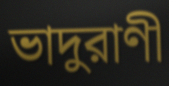
ভাদুরাণী